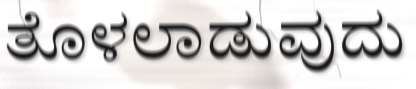
ತೊಳಲಾಡುವುದು